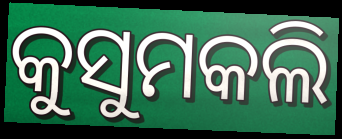
କୁସୁମକଲି